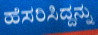
ಹೆಸರಿಸಿದ್ದನ್ನು